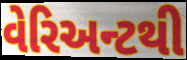
વેરિઅન્ટથી